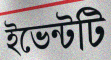
ইভেন্টটি